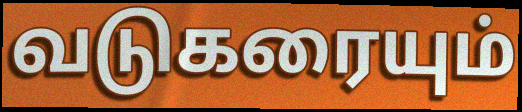
வடுகரையும்